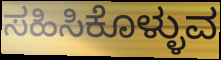
ಸಹಿಸಿಕೊಳ್ಳುವ